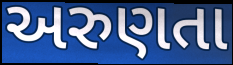
અરુણતા